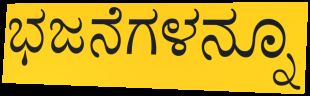
ಭಜನೆಗಳನ್ನೂ